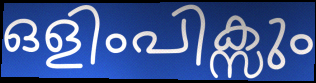
ഒളിംപിക്സും